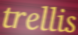
trellis